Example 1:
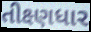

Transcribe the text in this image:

તીક્ષ્ણધાર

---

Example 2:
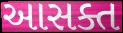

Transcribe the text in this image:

આસક્ત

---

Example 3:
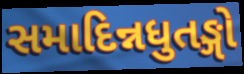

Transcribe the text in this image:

સમાદિન્નધુતઙ્ગો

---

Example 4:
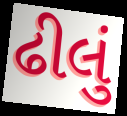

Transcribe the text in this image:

ઢીલું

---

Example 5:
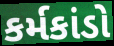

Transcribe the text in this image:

કર્મકાંડો